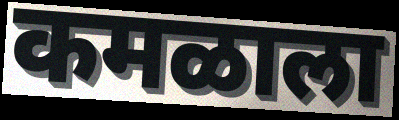
कमळाला